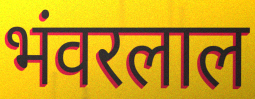
भंवरलाल